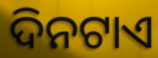
ଦିନଟାଏ